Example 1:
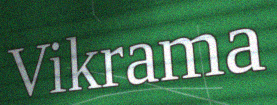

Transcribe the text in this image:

Vikrama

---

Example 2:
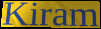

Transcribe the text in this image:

Kiram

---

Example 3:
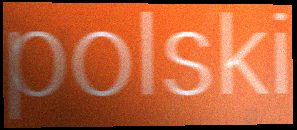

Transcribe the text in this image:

polski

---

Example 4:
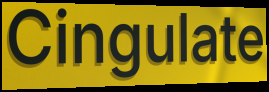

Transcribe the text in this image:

Cingulate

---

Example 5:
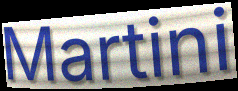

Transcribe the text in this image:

Martini